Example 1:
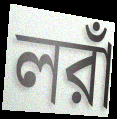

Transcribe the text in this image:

লরাঁ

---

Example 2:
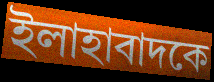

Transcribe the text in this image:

ইলাহাবাদকে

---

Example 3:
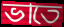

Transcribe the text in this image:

ভাতে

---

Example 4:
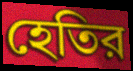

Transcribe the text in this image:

হেতির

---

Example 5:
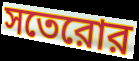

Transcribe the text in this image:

সতেরোর